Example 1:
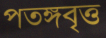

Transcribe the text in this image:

পতঙ্গবৃত্ত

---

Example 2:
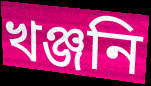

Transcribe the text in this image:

খঞ্জনি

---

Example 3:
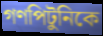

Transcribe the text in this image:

গণপিটুনিকে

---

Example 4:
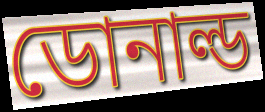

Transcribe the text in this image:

ডোনাল্ড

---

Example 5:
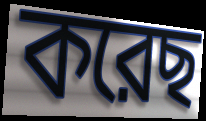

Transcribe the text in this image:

করেছ